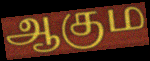
ஆகும